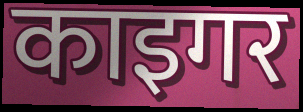
काइगर